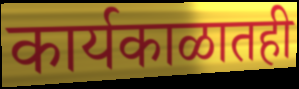
कार्यकाळातही